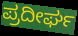
ಪ್ರದೀರ್ಘ